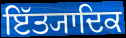
ਇੱਤ੍ਯਾਦਿਕ